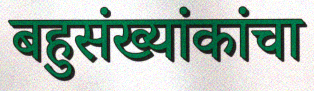
बहुसंख्यांकांचा